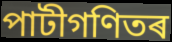
পাটীগণিতৰ